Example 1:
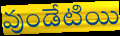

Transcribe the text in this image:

వుండేటియి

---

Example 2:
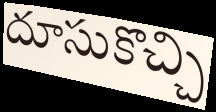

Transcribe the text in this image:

దూసుకొచ్చి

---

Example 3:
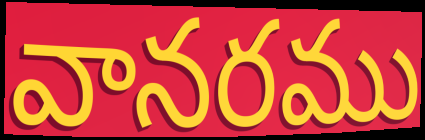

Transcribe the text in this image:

వానరము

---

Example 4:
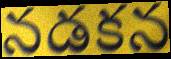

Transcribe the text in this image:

నడకన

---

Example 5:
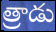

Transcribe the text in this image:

త్రాడు